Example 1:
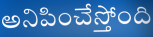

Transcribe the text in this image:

అనిపించేస్తోంది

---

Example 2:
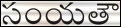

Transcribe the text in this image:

సంయతౌ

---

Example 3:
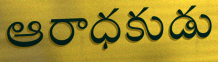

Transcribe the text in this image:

ఆరాధకుడు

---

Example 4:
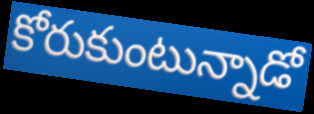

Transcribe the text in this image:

కోరుకుంటున్నాడో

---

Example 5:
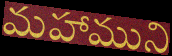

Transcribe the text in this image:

మహాముని